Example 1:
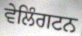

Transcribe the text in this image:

ਵੇਲਿੰਗਟਨ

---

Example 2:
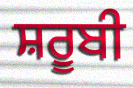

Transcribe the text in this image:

ਸ਼ਰੂਬੀ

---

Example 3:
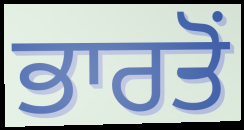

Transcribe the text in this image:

ਭਾਰਤੋਂ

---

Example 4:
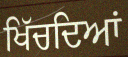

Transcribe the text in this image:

ਖਿੱਚਦਿਆਂ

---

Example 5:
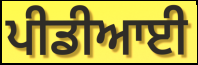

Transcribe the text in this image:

ਪੀਡੀਆਈ